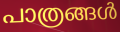
പാത്രങ്ങൾ